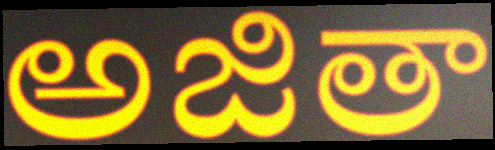
అజితా